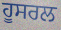
ਹੂਸਰਲ